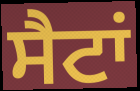
ਸੈਟਾਂ